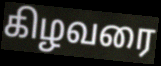
கிழவரை